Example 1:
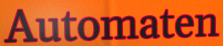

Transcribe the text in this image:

Automaten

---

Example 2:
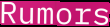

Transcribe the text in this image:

Rumors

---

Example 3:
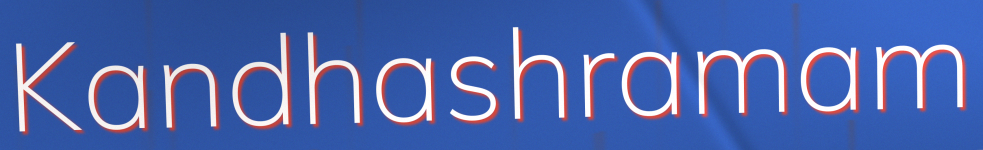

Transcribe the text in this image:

Kandhashramam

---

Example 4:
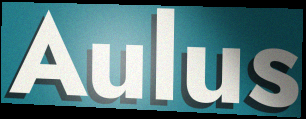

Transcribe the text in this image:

Aulus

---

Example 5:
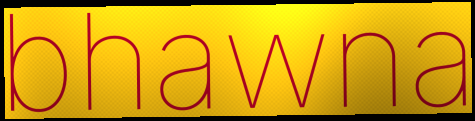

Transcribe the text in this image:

bhawna